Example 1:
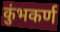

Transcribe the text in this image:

कुंभकर्ण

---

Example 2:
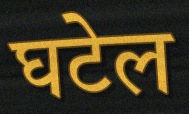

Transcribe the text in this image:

घटेल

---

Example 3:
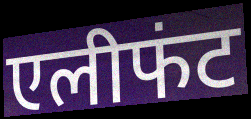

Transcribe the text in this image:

एलीफंट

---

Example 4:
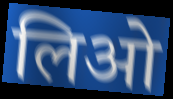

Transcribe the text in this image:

लिओ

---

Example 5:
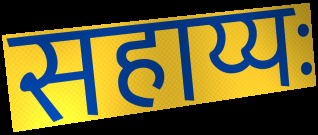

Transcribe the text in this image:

सहाय्यः